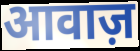
आवाज़